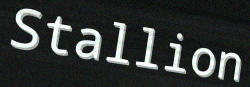
Stallion